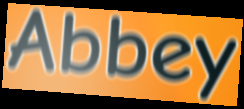
Abbey